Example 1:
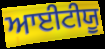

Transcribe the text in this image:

ਆਈਟੀਯੂ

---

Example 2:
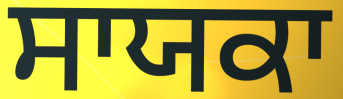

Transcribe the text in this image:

ਸਾਯਕਾ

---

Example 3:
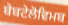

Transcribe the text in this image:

ਬੇਬਟੇਲੋਵਿਮਬ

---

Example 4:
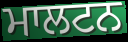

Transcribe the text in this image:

ਮਾਲਟਨ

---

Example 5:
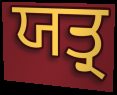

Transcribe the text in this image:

ਯਤ੍ਰ